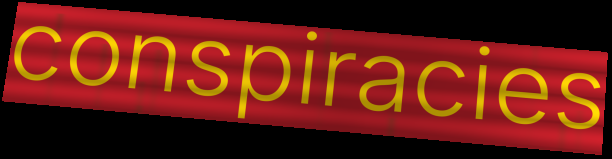
conspiracies